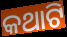
କଥାଟି